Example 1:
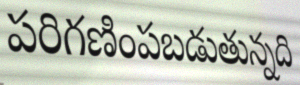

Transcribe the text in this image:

పరిగణింపబడుతున్నది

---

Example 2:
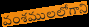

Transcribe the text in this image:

వంశములలోగాని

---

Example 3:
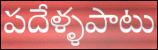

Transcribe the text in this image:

పదేళ్ళపాటు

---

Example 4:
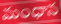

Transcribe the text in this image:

మంధాన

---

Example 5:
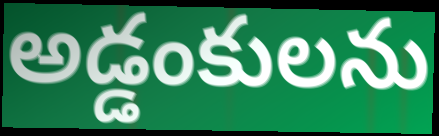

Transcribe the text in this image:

అడ్డంకులను